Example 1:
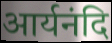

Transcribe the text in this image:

आर्यनंदि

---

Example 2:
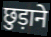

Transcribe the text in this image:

छुड़ाने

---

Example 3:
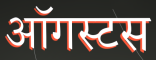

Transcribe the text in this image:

ऑगस्टस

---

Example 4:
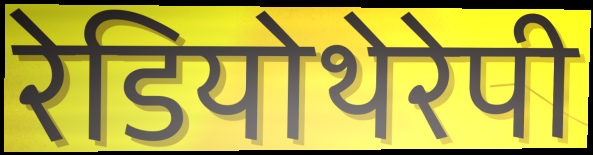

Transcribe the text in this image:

रेडियोथेरेपी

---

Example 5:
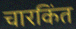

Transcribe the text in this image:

चारकिंत